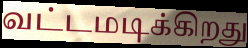
வட்டமடிக்கிறது